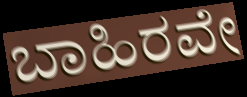
ಬಾಹಿರವೇ